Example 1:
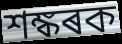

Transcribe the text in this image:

শঙ্কৰক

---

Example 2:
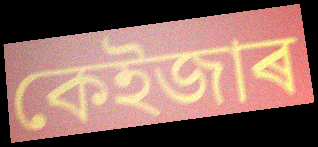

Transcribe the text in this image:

কেইজাৰ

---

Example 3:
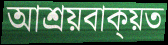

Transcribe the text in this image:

আশ্ৰয়বাক্য়ত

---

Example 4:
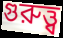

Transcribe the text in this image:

গুৰুত্ত্ব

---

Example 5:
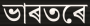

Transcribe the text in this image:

ভাৰতৰে